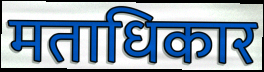
मताधिकार